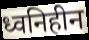
ध्वनिहीन